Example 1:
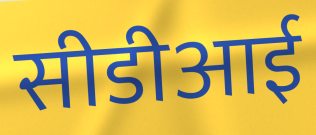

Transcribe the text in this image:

सीडीआई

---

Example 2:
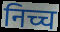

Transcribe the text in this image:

निच्च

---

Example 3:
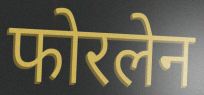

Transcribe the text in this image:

फोरलेन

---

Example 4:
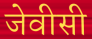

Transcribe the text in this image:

जेवीसी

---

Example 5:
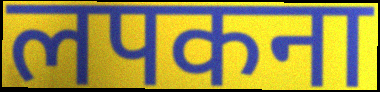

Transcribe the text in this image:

लपकना